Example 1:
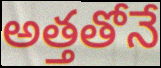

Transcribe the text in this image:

అత్తతోనే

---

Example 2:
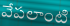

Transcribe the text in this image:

వేపలాంటి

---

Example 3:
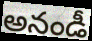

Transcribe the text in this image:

అనండీ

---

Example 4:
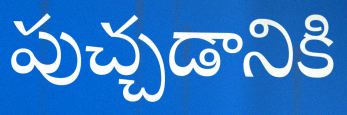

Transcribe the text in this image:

పుచ్చడానికి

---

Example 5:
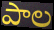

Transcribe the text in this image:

పాల